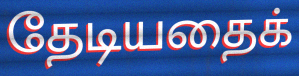
தேடியதைக்